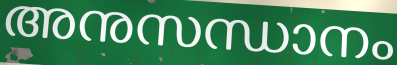
അനുസന്ധാനം